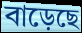
বাড়েছে